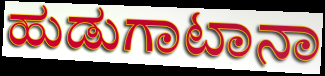
ಹುಡುಗಾಟಾನಾ